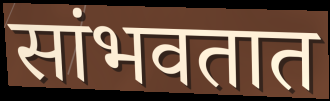
सांभवतात